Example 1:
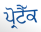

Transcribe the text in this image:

ਪ੍ਰੋਟੈੱਕ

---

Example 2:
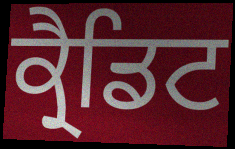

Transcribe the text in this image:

ਕ੍ਰੈਡਿਟ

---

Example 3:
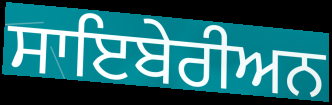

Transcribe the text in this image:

ਸਾਇਬੇਰੀਅਨ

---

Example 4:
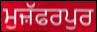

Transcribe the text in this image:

ਮੁਜ਼ੱਫਰਪੁਰ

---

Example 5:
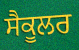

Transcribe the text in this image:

ਸੈਕੂਲਰ